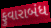
ફુવારાબંધ